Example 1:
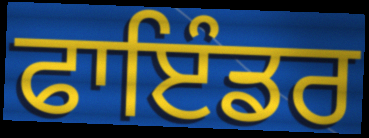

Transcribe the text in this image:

ਫਾਇੰਡਰ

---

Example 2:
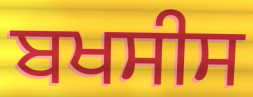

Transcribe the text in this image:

ਬਖਸੀਸ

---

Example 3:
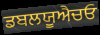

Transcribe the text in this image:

ਡਬਲਯੂਐਚਓ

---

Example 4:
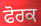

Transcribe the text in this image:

ਫੋਰਕ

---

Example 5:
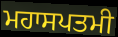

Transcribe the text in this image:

ਮਹਾਸਪਤਮੀ